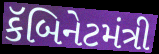
કૅબિનેટમંત્રી